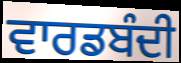
ਵਾਰਡਬੰਦੀ